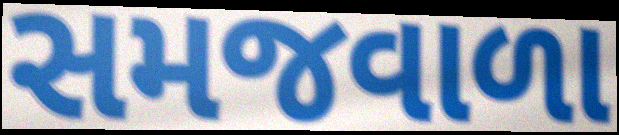
સમજવાળા